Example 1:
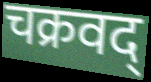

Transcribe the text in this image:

चक्रवद्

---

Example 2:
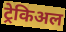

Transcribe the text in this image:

ट्रेकिअल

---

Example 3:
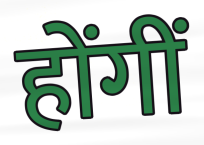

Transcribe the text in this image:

होंगीं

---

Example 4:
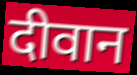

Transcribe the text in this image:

दीवान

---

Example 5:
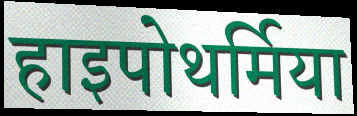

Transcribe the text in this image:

हाइपोथर्मिया